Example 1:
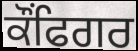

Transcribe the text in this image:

ਕੌਂਫਿਗਰ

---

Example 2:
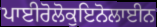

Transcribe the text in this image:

ਪਾਈਰੋਲੋਕੁਇਨੋਲਾਈਨ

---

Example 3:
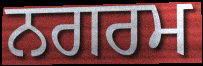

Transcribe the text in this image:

ਨਗਰਮ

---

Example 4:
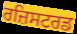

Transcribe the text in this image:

ਰਜ਼ਿਸਟਰਡ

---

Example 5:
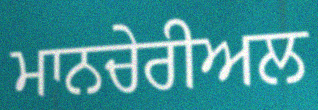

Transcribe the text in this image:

ਮਾਨਚੇਰੀਅਲ